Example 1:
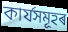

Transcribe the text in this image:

কাৰ্যসমূহৰ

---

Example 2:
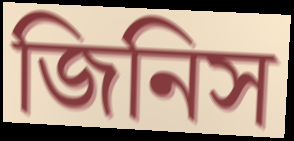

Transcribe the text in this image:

জিনিস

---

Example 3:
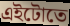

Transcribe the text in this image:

এইটোতে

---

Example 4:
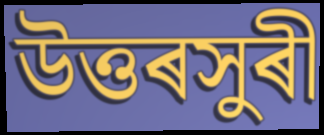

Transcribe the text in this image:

উত্তৰসুৰী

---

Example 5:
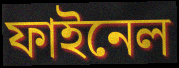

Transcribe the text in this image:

ফাইনেল